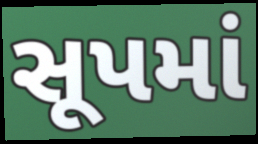
સૂપમાં